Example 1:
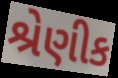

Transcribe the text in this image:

શ્રેણીક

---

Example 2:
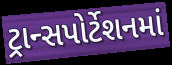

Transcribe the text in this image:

ટ્રાન્સપોર્ટેશનમાં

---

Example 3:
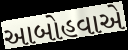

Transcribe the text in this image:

આબોહવાએ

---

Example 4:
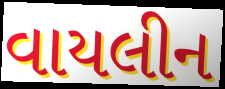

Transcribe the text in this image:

વાયલીન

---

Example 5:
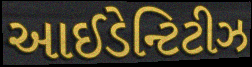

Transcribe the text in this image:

આઈડેન્ટિટીઝ